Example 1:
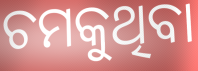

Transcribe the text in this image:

ଚମକୁଥିବା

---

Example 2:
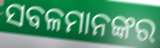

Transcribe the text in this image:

ସବଳମାନଙ୍କର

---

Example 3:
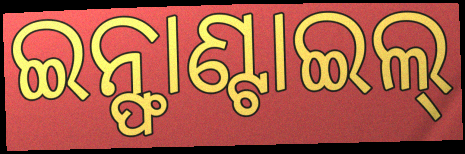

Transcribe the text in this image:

ଇନ୍ଫାଣ୍ଟାଇଲ୍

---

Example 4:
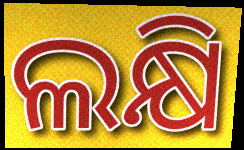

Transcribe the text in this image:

ଲକ୍ଷି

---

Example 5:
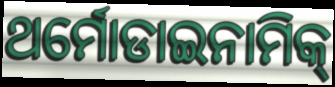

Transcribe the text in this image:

ଥର୍ମୋଡାଇନାମିକ୍